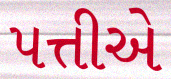
પત્તીએ